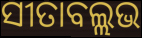
ସୀତାବଲ୍ଲଭ